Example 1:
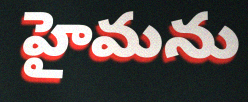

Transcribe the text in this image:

హైమను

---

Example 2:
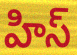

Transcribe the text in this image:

హిస్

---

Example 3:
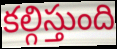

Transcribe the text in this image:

కల్గిస్తుంది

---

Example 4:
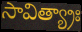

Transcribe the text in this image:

సావిత్య్రాః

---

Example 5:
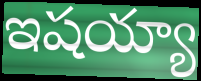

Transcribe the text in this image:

ఇషయ్యా